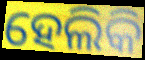
ହେଲିକି